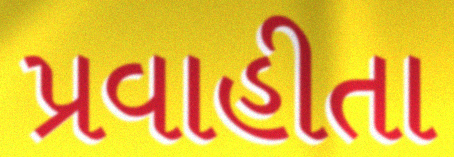
પ્રવાહીતા